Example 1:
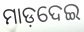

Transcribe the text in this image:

ମାଡ଼ଦେଇ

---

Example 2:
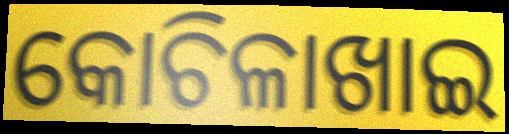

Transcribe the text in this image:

କୋଚିଳାଖାଇ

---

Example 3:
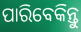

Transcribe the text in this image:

ପାରିବେକିନ୍ତୁ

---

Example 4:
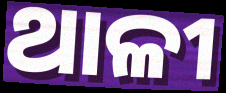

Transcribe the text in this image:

ଥାଳୀ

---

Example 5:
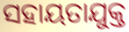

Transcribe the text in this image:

ସହାୟତାଯୁକ୍ତ